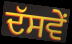
ਦੱਸਵੇਂ